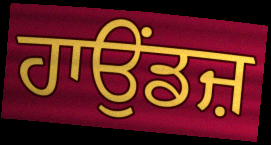
ਹਾਉਂਡਜ਼